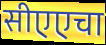
सीएएचा